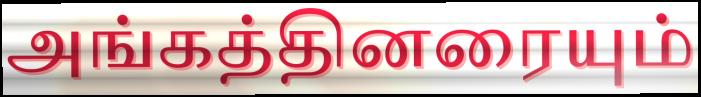
அங்கத்தினரையும்